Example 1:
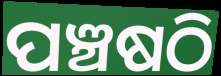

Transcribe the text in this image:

ପଞ୍ଚଷଠି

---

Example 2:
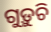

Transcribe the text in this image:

ଗୁଡ଼ୁଚି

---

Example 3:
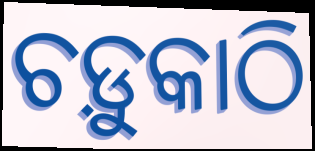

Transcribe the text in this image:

ଚଡ଼ୁକାଠି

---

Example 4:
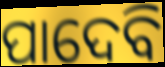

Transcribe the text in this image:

ପାଦେବି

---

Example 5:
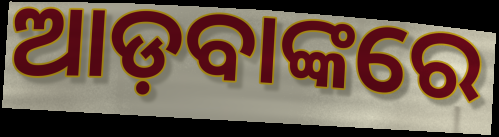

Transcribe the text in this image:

ଆଡ଼ବାଙ୍କରେ